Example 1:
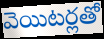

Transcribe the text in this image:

వెయిటర్లతో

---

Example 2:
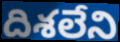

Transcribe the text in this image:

దిశలేని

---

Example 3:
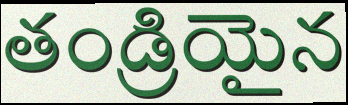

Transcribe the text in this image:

తండ్రియైన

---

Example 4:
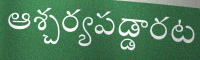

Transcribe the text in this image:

ఆశ్చర్యపడ్డారట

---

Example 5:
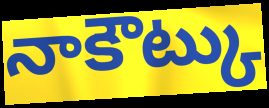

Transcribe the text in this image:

నాకౌట్కు